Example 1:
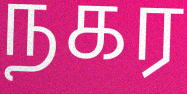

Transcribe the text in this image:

நகர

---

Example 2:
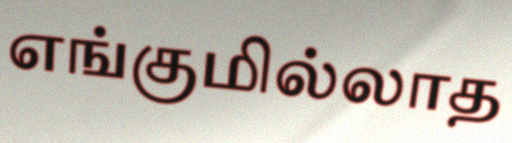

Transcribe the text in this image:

எங்குமில்லாத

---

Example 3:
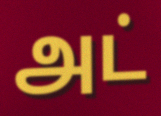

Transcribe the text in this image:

அட்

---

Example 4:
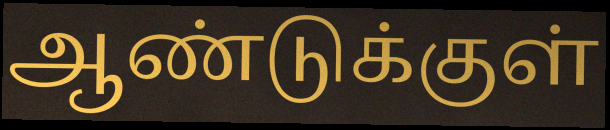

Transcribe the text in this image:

ஆண்டுக்குள்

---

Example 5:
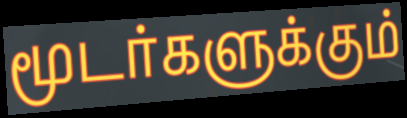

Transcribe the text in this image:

மூடர்களுக்கும்